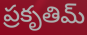
ప్రకృతిమ్